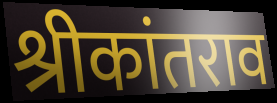
श्रीकांतराव